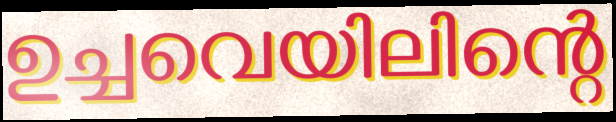
ഉച്ചവെയിലിന്റെ